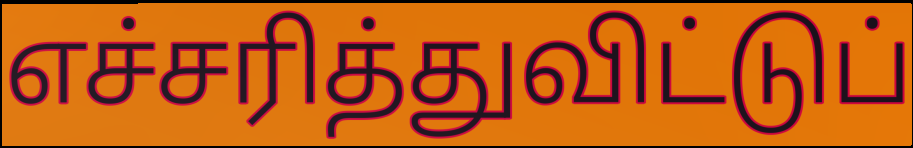
எச்சரித்துவிட்டுப்